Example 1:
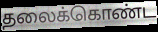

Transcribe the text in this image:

தலைக்கொண்ட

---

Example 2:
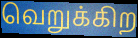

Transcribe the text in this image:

வெறுக்கிற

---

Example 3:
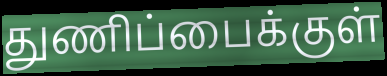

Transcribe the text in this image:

துணிப்பைக்குள்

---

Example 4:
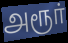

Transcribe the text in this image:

அரூர்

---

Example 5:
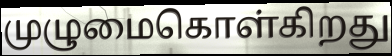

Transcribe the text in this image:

முழுமைகொள்கிறது